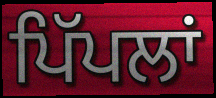
ਪਿੱਪਲਾਂ